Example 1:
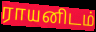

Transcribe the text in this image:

ராயனிடம்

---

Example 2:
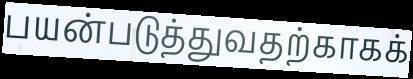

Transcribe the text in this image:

பயன்படுத்துவதற்காகக்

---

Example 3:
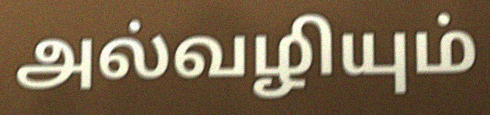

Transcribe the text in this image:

அல்வழியும்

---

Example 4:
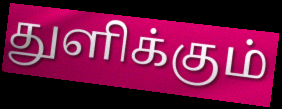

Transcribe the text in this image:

துளிக்கும்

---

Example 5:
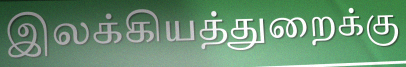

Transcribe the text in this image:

இலக்கியத்துறைக்கு